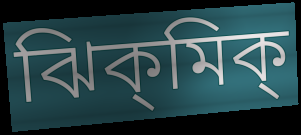
ঝিক্‌মিক্